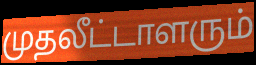
முதலீட்டாளரும்